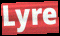
Lyre